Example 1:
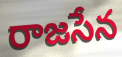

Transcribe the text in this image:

రాజసేన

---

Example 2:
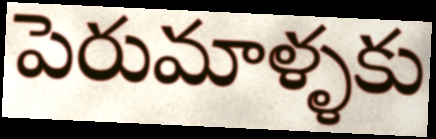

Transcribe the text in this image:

పెరుమాళ్ళకు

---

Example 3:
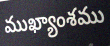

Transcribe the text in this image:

ముఖ్యాంశము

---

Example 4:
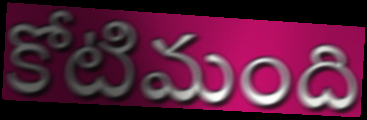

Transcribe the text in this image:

కోటిమంది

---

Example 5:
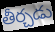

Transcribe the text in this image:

తీర్చడు